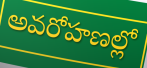
అవరోహణల్లో